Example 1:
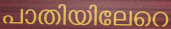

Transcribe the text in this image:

പാതിയിലേറെ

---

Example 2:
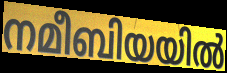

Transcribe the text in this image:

നമീബിയയിൽ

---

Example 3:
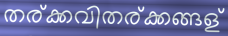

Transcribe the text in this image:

തര്ക്കവിതര്ക്കങ്ങള്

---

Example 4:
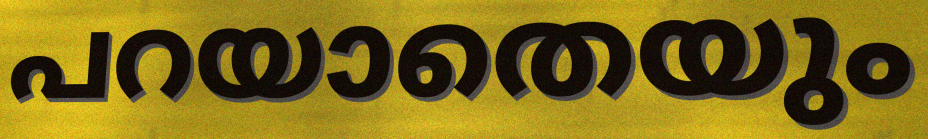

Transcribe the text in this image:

പറയാതെയും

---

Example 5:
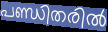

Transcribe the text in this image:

പണ്ഡിതരിൽ